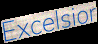
Excelsior